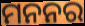
ମନନର